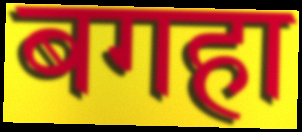
बगहा